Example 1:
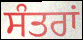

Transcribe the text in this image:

ਸੰਤਰਾਂ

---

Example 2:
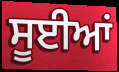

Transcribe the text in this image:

ਸੂਈਆਂ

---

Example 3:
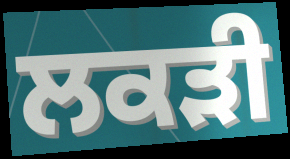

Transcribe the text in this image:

ਲਕੜੀ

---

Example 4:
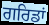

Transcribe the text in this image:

ਗਰਿਡਾਂ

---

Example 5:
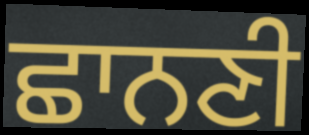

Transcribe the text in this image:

ਛਾਨਣੀ